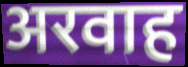
अरवाह